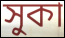
সুকা